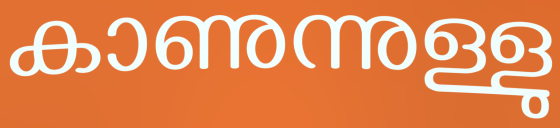
കാണുന്നുള്ളു